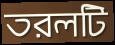
তরলটি